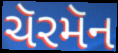
ચૅરમૅન